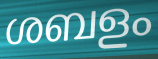
ശബളം